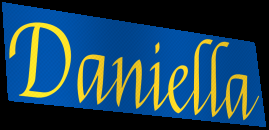
Daniella